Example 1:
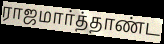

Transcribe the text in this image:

ராஜமார்த்தாண்ட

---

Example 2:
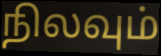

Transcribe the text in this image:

நிலவும்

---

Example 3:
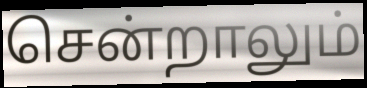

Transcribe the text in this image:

சென்றாலும்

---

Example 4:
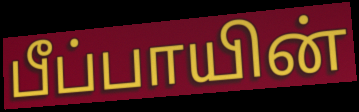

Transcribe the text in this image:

பீப்பாயின்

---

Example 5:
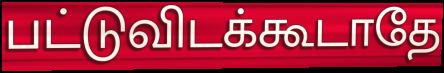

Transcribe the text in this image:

பட்டுவிடக்கூடாதே